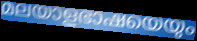
മലയാളഭാഷയെയും